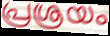
പ്രശ്രയം